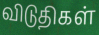
விடுதிகள்